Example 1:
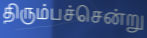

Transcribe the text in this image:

திரும்பச்சென்று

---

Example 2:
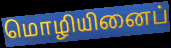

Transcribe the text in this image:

மொழியினைப்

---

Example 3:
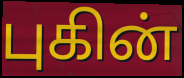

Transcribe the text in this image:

புகின்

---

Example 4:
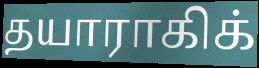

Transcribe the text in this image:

தயாராகிக்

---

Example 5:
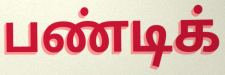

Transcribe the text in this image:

பண்டிக்